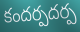
కందర్పదర్ప